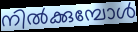
നിൽക്കുമ്പോൾ